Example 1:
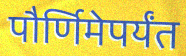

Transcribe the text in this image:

पौर्णिमेपर्यंत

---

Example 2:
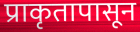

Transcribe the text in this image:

प्राकृतापासून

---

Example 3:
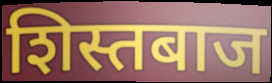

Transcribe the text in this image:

शिस्तबाज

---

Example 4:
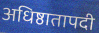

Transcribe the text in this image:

अधिष्ठातापदी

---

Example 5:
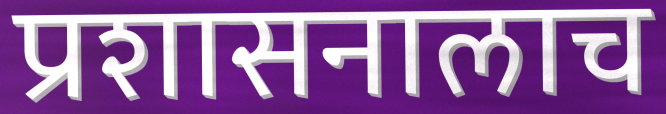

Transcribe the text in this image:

प्रशासनालाच